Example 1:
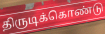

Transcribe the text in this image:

திருடிக்கொண்டு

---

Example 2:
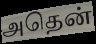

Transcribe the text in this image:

அதென்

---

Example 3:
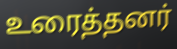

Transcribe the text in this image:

உரைத்தனர்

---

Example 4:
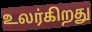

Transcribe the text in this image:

உலர்கிறது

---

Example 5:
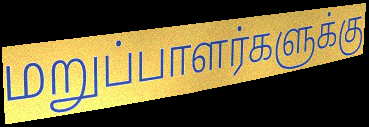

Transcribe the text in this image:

மறுப்பாளர்களுக்கு